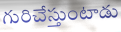
గురిచేస్తుంటాడు